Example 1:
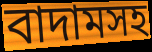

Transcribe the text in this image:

বাদামসহ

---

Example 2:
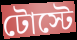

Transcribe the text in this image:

টোস্টে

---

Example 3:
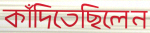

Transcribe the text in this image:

কাঁদিতেছিলেন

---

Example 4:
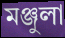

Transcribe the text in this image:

মঞ্জুলা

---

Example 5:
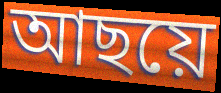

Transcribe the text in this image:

আছয়ে